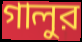
গালুর